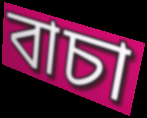
বাচা